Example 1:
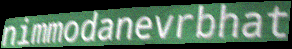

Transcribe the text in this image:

nimmodanevrbhat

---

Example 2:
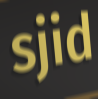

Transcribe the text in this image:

sjid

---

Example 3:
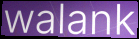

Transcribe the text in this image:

walank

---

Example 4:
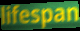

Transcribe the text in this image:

lifespan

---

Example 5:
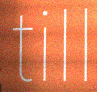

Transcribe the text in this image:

till